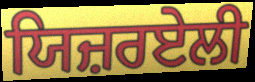
ਯਿਜ਼ਰਏਲੀ